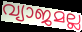
വ്യാജമല്ല